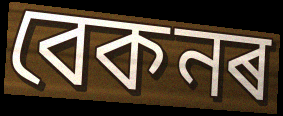
বেকনৰ